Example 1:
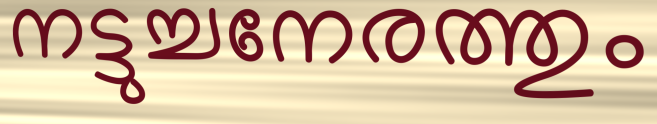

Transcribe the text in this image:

നട്ടുച്ചനേരത്തും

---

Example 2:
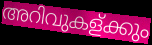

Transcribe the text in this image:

അറിവുകള്ക്കും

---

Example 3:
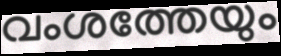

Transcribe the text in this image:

വംശത്തേയും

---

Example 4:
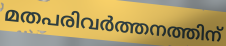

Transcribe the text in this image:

മതപരിവർത്തനത്തിന്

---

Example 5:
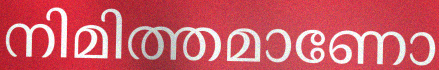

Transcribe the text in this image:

നിമിത്തമാണോ